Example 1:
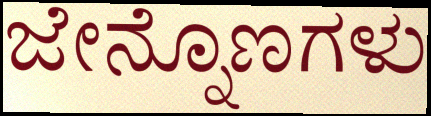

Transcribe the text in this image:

ಜೇನ್ನೊಣಗಳು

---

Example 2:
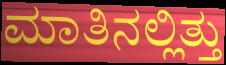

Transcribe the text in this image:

ಮಾತಿನಲ್ಲಿತ್ತು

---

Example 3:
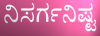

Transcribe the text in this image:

ನಿಸರ್ಗನಿಷ್ಟ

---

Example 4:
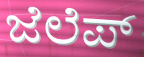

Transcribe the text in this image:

ಜೆಲೆಪ್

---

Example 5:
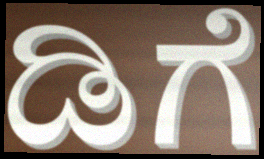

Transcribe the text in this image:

ಡಿಗೆ